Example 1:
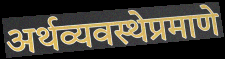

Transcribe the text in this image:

अर्थव्यवस्थेप्रमाणे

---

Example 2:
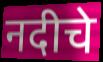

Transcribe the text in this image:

नदीचे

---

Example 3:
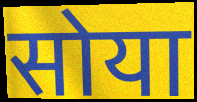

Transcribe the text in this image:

सोया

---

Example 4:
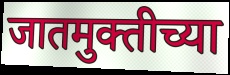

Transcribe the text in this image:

जातमुक्तीच्या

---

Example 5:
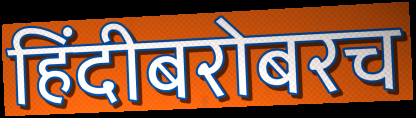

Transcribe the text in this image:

हिंदीबरोबरच